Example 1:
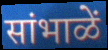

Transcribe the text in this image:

सांभाळें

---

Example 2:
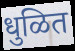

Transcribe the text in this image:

धुळित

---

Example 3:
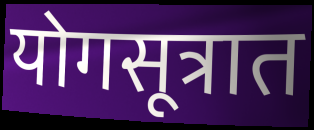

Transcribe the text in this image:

योगसूत्रात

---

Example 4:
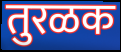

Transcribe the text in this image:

तुरळक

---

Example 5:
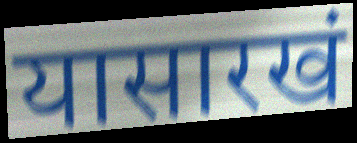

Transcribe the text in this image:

यासारखं